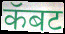
कॅबट